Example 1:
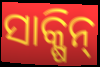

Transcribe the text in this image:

ସାକ୍ଷିନ୍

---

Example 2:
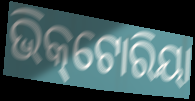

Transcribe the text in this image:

ଭିକ୍‌ଟୋରିୟା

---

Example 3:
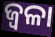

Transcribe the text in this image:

ଜ୍ୱଳା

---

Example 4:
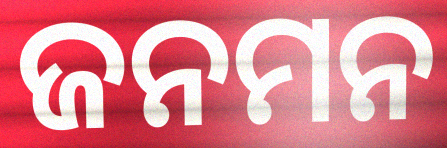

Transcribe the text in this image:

ଜନମନ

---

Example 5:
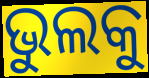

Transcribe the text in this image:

ଭୁଲକୁ